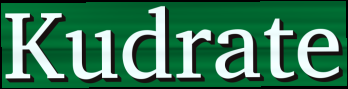
Kudrate